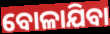
ବୋଳାଯିବା